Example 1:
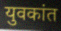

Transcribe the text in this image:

युवकांत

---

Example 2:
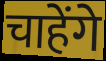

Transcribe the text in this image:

चाहेंगे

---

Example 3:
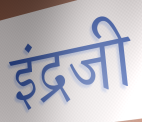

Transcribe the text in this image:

इंद्रजी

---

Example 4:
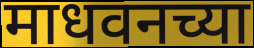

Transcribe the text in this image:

माधवनच्या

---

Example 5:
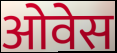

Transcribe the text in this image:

ओवेस